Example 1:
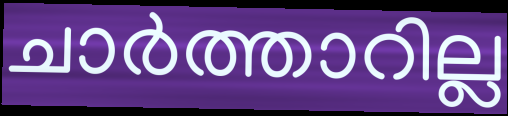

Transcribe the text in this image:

ചാർത്താറില്ല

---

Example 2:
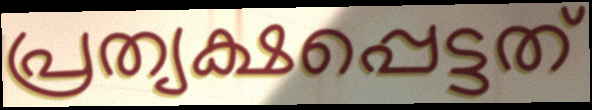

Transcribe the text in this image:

പ്രത്യക്ഷപ്പെട്ടത്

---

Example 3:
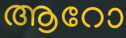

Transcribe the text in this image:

ആറോ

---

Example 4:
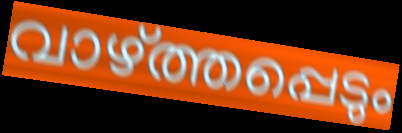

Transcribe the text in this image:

വാഴ്ത്തപ്പെടും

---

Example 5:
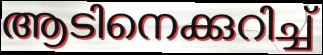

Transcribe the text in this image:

ആടിനെക്കുറിച്ച്